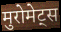
मुरोमेट्स